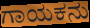
ಗಾಯಕನು